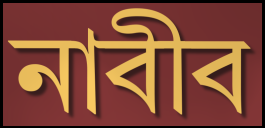
নাবীব